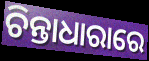
ଚିନ୍ତାଧାରାରେ